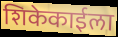
शिकेकाईला